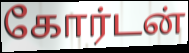
கோர்டன்